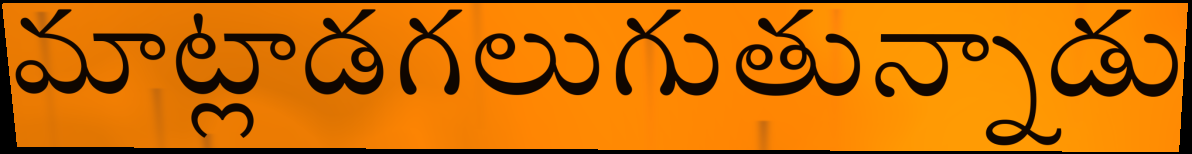
మాట్లాడగలుగుతున్నాడు